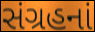
સંગ્રહનાં